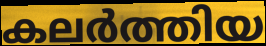
കലർത്തിയ